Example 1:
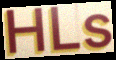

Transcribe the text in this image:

HLs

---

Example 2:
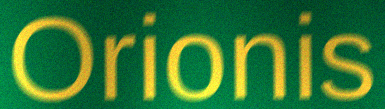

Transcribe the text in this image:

Orionis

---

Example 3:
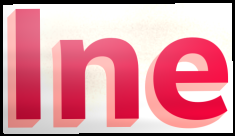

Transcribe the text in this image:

Ine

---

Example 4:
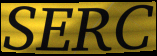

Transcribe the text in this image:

SERC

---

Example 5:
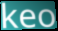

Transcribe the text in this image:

keo